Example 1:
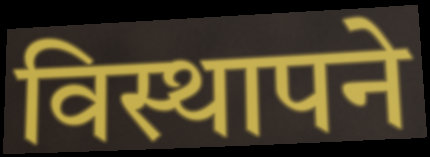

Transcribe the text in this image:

विस्थापने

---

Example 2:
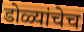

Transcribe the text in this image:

डोळ्यांचेच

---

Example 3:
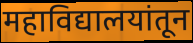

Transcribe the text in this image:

महाविद्यालयांतून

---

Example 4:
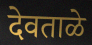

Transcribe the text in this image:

देवताळे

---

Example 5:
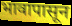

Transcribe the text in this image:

भावापासून